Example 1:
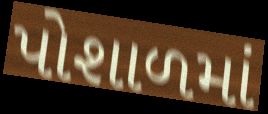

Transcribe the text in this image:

પોશાળમાં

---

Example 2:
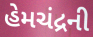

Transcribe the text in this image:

હેમચંદ્રની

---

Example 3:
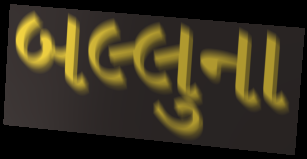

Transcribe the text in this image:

બલ્લુના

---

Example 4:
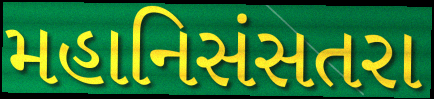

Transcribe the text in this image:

મહાનિસંસતરા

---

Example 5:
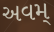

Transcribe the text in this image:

અવમ્